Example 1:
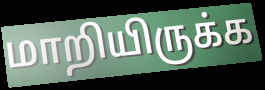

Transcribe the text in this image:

மாறியிருக்க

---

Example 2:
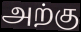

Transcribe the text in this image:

அற்கு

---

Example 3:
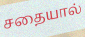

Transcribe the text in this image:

சதையால்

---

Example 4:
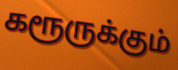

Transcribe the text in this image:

கரூருக்கும்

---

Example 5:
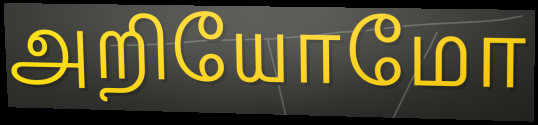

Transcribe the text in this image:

அறியோமோ